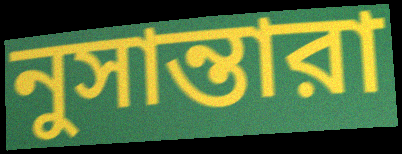
নুসান্তারা